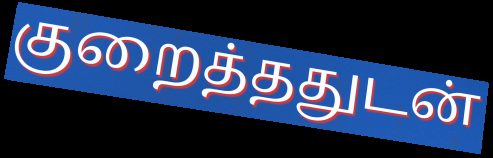
குறைத்ததுடன்